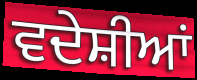
ਵਦੇਸ਼ੀਆਂ